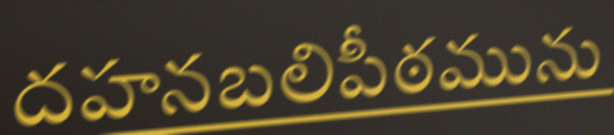
దహనబలిపీఠమును